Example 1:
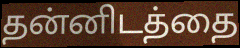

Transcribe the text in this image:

தன்னிடத்தை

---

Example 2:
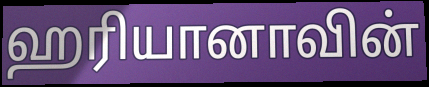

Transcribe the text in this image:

ஹரியானாவின்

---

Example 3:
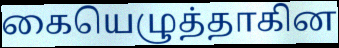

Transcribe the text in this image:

கையெழுத்தாகின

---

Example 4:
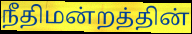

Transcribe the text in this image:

நீதிமன்றத்தின்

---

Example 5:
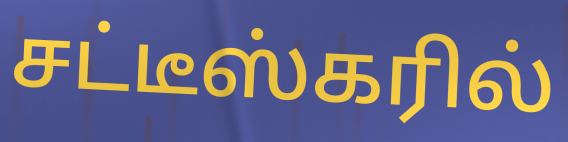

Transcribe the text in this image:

சட்டீஸ்கரில்